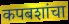
कपबशांचा